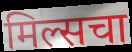
मिल्सचा